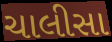
ચાલીસા